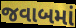
જવાબમાં